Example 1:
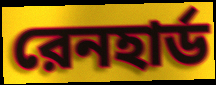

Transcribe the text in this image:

রেনহার্ড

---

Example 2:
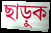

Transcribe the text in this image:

ছাড়ুক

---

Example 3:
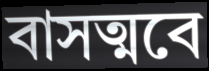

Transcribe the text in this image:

বাসত্মবে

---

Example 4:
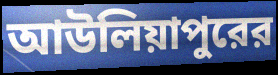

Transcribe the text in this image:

আউলিয়াপুরের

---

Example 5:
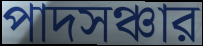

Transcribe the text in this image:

পাদসঞ্চার